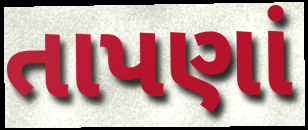
તાપણાં